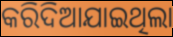
କରିଦିଆଯାଇଥିଲା